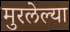
मुरलेल्या